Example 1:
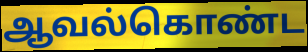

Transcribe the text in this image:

ஆவல்கொண்ட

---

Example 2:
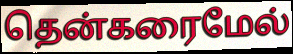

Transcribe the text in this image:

தென்கரைமேல்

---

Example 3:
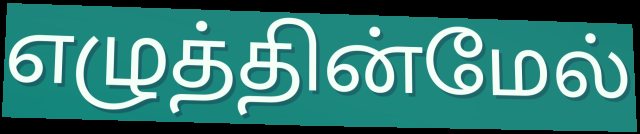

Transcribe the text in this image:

எழுத்தின்மேல்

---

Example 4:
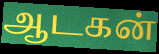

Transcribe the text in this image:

ஆடகன்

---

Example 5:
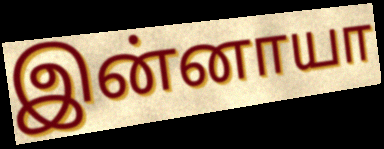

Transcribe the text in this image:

இன்னாயா